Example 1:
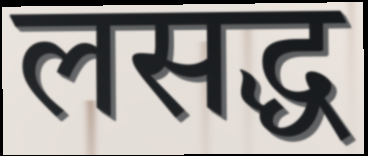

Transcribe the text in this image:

लसद्ध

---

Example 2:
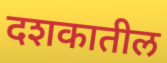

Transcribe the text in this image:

दशकातील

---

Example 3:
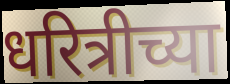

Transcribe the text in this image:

धरित्रीच्या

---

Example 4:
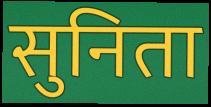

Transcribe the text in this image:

सुनिता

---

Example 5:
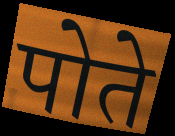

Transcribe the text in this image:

पोते